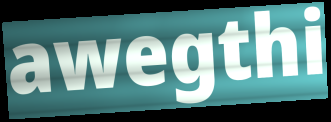
awegthi